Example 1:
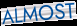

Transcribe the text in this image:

ALMOST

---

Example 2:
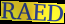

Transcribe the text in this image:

RAED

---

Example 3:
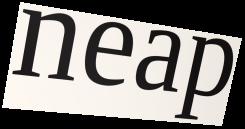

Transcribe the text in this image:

neap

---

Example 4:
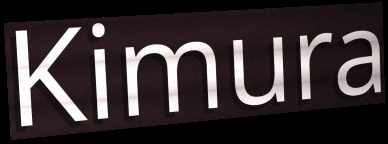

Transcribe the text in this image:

Kimura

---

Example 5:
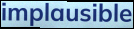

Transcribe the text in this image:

implausible